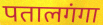
पतालगंगा